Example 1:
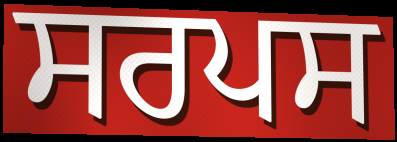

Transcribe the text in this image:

ਸਰਪਸ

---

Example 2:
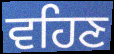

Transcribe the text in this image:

ਵਹਿਣ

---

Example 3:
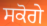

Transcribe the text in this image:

ਸਕੋਗੇ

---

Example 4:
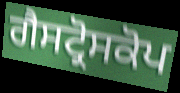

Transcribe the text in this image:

ਗੈਸਟ੍ਰੋਸਕੋਪ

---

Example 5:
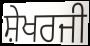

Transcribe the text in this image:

ਸ਼ੇਖਰਜੀ